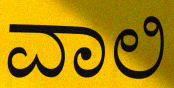
ವಾಲಿ